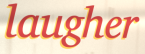
laugher